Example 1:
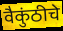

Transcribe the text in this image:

वैकुंठीचे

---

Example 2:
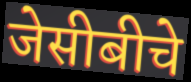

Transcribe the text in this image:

जेसीबीचे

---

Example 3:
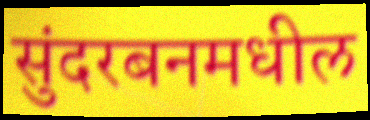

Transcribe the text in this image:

सुंदरबनमधील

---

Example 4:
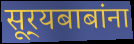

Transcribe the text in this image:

सूर्यबाबांना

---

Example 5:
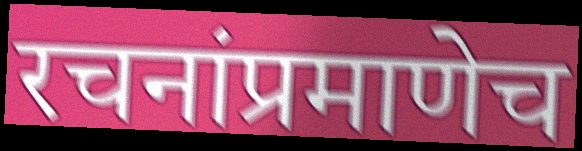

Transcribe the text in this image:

रचनांप्रमाणेच